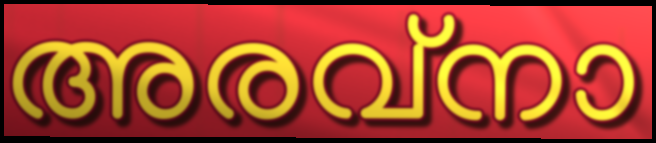
അരവ്നാ